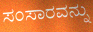
ಸಂಸಾರವನ್ನು